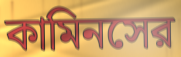
কামিনসের